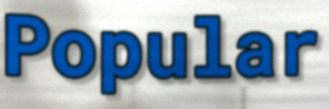
Popular